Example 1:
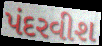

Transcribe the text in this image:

પંદરવીશ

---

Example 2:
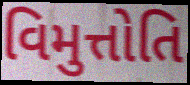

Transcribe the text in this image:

વિમુત્તોતિ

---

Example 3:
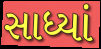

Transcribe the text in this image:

સાધ્યાં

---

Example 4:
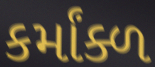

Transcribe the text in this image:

કર્માંક્ળ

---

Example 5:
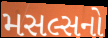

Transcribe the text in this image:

મસલ્સનો